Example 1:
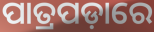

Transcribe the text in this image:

ପାତ୍ରପଡ଼ାରେ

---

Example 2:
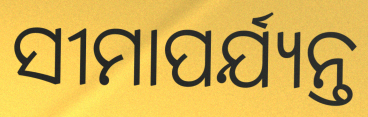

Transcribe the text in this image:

ସୀମାପର୍ଯ୍ୟନ୍ତ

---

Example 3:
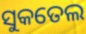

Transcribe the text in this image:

ସୁକତେଲ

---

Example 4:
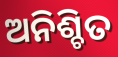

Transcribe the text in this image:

ଅନିଶ୍ଚିତ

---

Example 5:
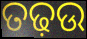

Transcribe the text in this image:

ତଢ଼ଉ